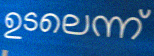
ഉടലെന്ന്